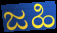
ಜಹಿ